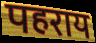
पहराय